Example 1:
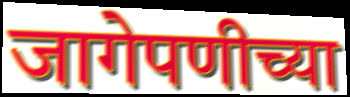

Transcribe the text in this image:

जागेपणीच्या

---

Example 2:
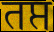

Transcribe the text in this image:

तप्त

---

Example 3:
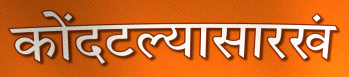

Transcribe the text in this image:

कोंदटल्यासारखं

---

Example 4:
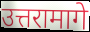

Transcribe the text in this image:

उत्तरामागे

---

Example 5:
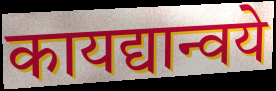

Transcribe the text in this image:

कायद्यान्वये